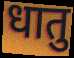
धातु